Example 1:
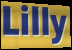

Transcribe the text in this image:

Lilly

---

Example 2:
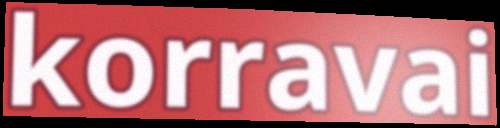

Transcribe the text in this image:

korravai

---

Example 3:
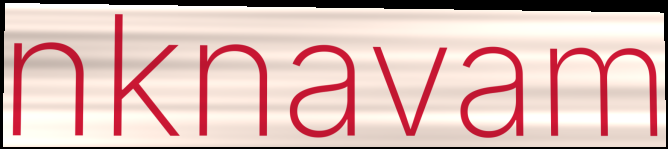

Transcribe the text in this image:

nknavam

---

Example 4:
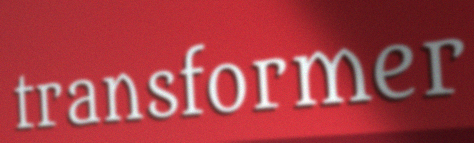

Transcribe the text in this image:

transformer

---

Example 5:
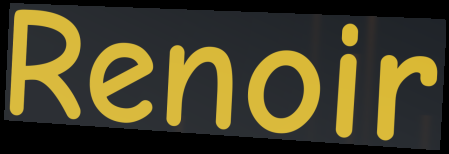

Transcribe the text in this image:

Renoir